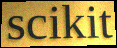
scikit